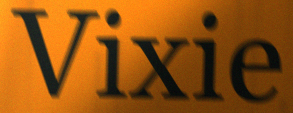
Vixie